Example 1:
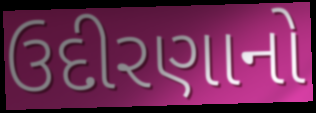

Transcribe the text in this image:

ઉદીરણાનો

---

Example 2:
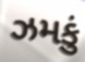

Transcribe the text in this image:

ઝમકું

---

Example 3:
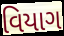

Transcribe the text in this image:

વિયાગ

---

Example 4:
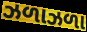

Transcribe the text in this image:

ઝળાઝળા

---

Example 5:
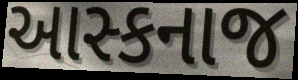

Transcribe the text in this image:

આસ્કનાજ